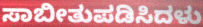
ಸಾಬೀತುಪಡಿಸಿದಳು